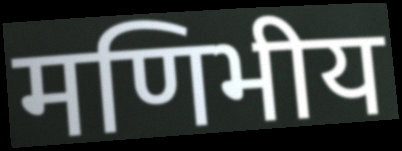
मणिभीय